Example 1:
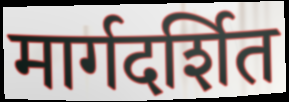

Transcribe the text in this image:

मार्गदर्शित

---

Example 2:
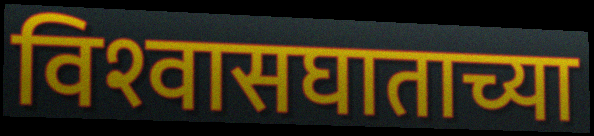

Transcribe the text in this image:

विश्वासघाताच्या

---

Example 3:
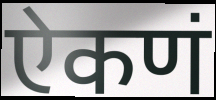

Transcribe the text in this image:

ऐकणं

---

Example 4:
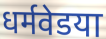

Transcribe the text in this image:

धर्मवेडया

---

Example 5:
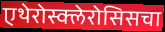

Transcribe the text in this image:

एथेरोस्क्लेरोसिसचा